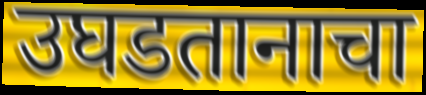
उघडतानाचा